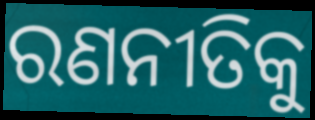
ରଣନୀତିକୁ